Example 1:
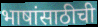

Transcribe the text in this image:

भाषांसाठीची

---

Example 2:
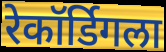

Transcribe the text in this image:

रेकॉर्डिगला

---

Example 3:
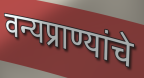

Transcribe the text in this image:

वन्यप्राण्यांचे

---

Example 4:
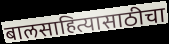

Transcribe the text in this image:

बालसाहित्यासाठीचा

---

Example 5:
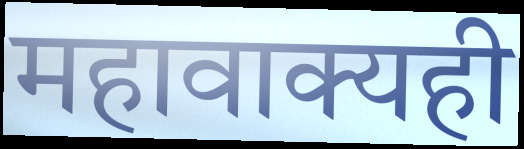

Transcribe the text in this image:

महावाक्यही